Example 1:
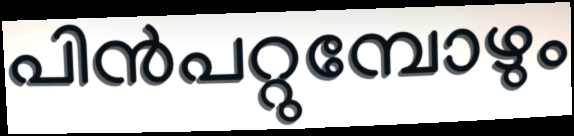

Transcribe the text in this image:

പിൻപറ്റുമ്പോഴും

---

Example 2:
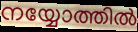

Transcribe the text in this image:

നയ്യോത്തിൽ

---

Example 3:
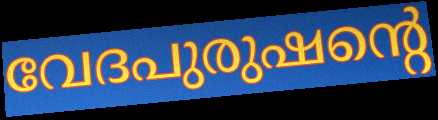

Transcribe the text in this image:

വേദപുരുഷന്റെ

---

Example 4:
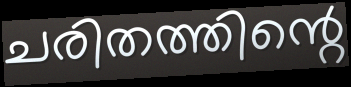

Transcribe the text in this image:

ചരിതത്തിന്റെ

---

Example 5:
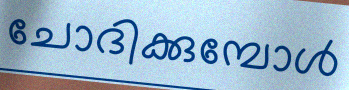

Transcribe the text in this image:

ചോദിക്കുമ്പോൾ